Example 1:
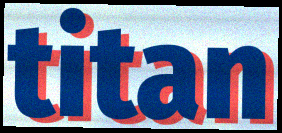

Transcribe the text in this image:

titan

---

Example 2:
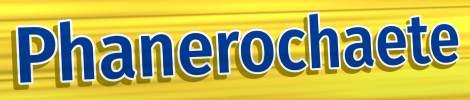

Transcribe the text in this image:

Phanerochaete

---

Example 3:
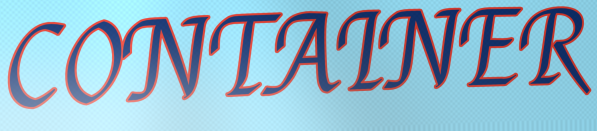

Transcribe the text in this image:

CONTAINER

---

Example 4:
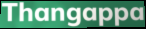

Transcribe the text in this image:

Thangappa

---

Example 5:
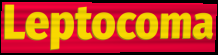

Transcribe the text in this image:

Leptocoma